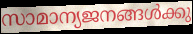
സാമാന്യജനങ്ങൾക്കു